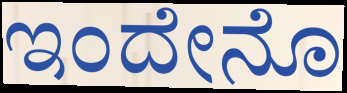
ಇಂದೇನೊ